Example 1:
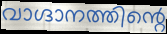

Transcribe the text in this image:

വാഗ്ദാനത്തിന്റെ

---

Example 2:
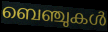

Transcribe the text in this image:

ബെഞ്ചുകൾ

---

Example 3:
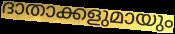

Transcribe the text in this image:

ദാതാക്കളുമായും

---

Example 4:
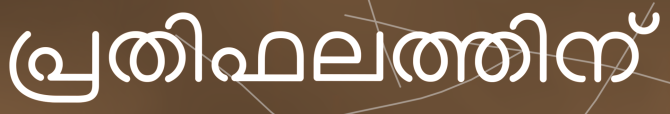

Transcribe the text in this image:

പ്രതിഫലത്തിന്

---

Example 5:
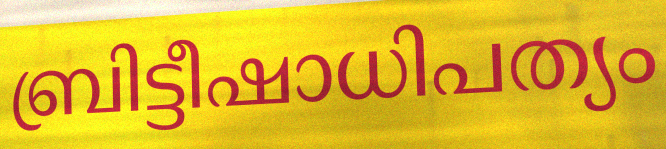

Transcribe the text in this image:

ബ്രിട്ടീഷാധിപത്യം